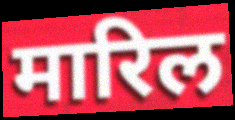
मारिल